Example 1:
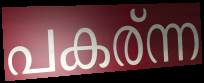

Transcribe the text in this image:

പകര്ന്ന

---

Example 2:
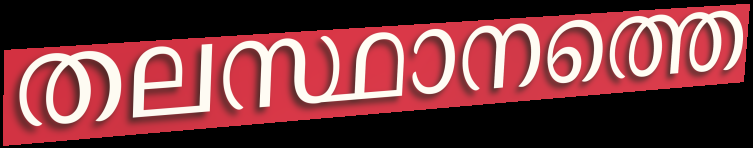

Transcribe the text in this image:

തലസ്ഥാനത്തെ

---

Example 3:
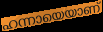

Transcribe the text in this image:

ഹന്നായെയാണ്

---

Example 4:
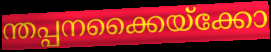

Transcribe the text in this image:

ന്തപ്പനക്കൈയ്ക്കോ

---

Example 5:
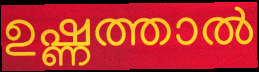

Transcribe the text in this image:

ഉഷ്ണത്താൽ